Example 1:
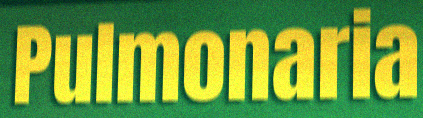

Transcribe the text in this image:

Pulmonaria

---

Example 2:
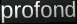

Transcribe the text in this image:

profond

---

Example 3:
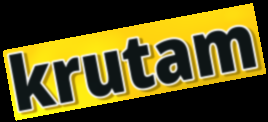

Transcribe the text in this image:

krutam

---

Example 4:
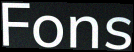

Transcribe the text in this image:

Fons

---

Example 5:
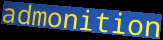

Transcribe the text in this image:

admonition